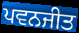
ਪਵਨਜੀਤ